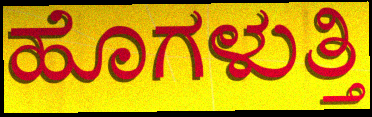
ಹೊಗಳುತ್ತಿ